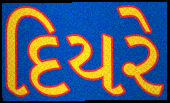
દિયરે